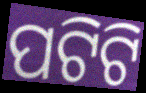
ପଟିଟି